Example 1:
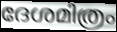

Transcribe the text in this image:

ദേശമിത്രം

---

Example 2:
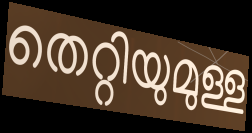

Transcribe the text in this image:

തെറ്റിയുമുള്ള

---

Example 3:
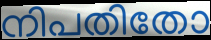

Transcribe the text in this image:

നിപതിതോ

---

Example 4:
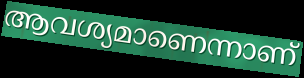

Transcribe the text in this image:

ആവശ്യമാണെന്നാണ്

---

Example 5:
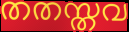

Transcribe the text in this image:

തതസ്തവ